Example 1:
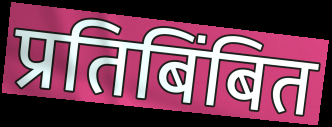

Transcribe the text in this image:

प्रतिबिंबित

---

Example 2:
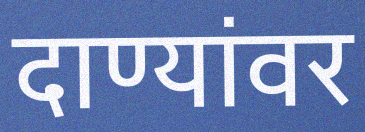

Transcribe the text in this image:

दाण्यांवर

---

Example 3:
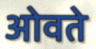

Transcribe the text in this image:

ओवते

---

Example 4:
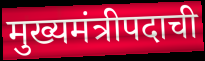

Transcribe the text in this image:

मुख्यमंत्रीपदाची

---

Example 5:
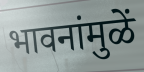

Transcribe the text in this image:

भावनांमुळें